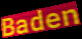
Baden